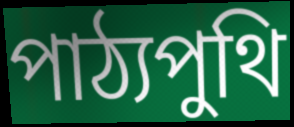
পাঠ্যপুথি